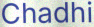
Chadhi